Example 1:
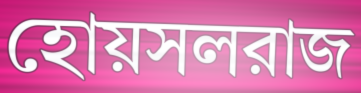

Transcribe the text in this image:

হোয়সলরাজ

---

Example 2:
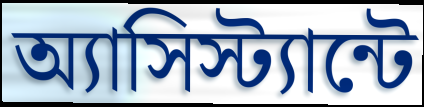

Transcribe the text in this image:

অ্যাসিস্ট্যান্টে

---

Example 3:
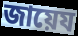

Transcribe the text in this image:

জায়েয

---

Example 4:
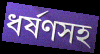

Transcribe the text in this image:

ধর্ষণসহ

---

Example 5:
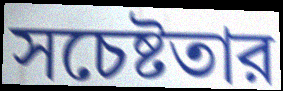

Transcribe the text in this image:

সচেষ্টতার